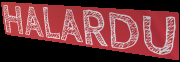
HALARDU